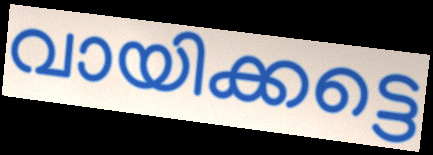
വായിക്കട്ടെ